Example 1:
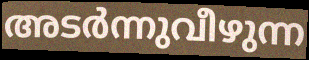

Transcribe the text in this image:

അടർന്നുവീഴുന്ന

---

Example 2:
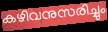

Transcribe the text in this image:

കഴിവനുസരിച്ചും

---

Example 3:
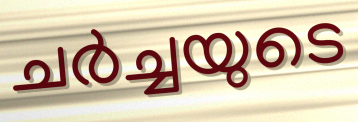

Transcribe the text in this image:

ചർച്ചയുടെ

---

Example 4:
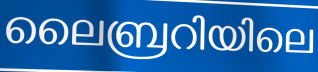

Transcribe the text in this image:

ലൈബ്രറിയിലെ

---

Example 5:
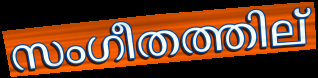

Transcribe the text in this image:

സംഗീതത്തില്